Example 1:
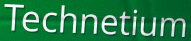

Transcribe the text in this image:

Technetium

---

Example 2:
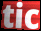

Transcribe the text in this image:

tic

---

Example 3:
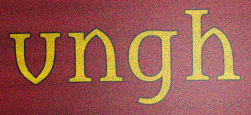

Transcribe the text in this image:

ungh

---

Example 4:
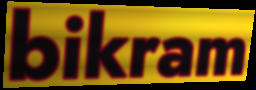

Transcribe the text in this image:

bikram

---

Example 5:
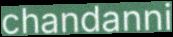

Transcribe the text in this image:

chandanni